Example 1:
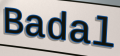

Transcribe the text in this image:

Badal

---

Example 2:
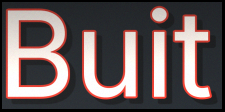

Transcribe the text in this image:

Buit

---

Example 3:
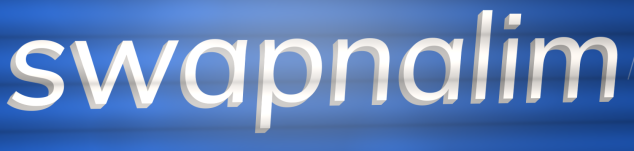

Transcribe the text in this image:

swapnalim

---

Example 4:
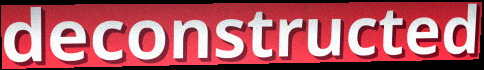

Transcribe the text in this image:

deconstructed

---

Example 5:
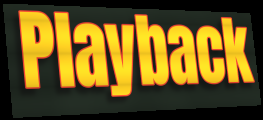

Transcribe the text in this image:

Playback